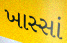
ખાસ્સાં